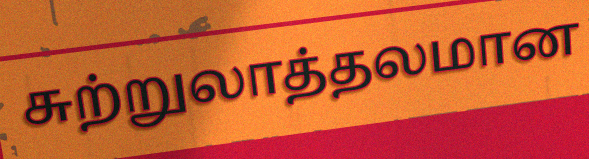
சுற்றுலாத்தலமான